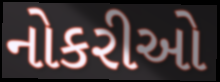
નોકરીઓ